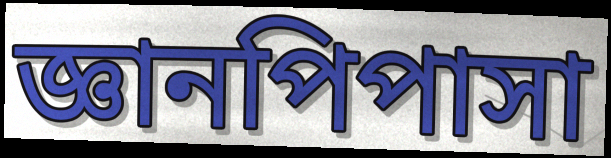
জ্ঞানপিপাসা